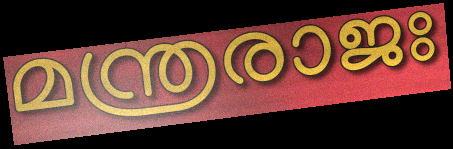
മന്ത്രരാജഃ